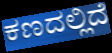
ಕಣದಲ್ಲಿದೆ